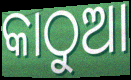
କାଠୁଆ